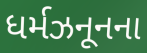
ધર્મઝનૂનના